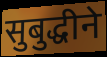
सुबुद्धीने